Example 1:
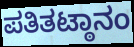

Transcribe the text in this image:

ಪತಿತಟ್ಠಾನಂ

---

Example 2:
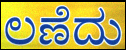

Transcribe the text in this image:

ಲಣೆದು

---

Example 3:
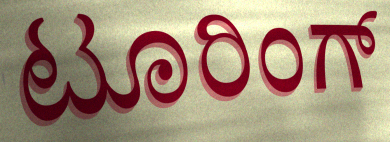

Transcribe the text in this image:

ಟೂರಿಂಗ್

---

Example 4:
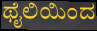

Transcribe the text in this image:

ಥೈಲಿಯಿಂದ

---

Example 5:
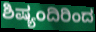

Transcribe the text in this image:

ಶಿಷ್ಯಂದಿರಿಂದ